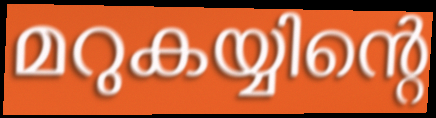
മറുകയ്യിന്റെ